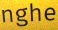
nghe